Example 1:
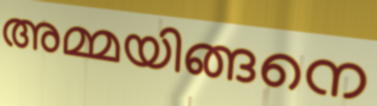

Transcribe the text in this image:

അമ്മയിങ്ങനെ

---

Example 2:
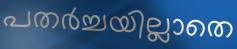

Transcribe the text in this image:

പതർച്ചയില്ലാതെ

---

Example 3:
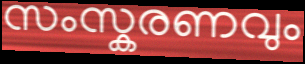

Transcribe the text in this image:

സംസ്കരണവും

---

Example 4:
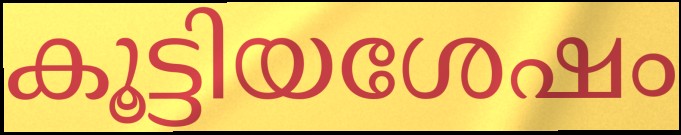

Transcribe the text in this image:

കൂട്ടിയശേഷം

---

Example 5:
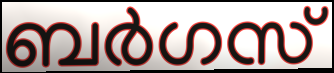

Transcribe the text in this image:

ബർഗസ്